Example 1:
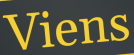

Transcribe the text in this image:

Viens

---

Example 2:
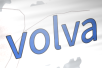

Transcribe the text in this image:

volva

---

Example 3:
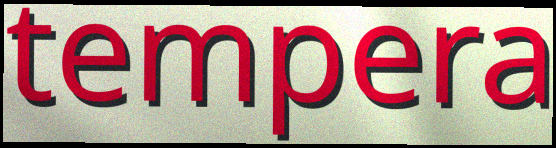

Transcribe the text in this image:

tempera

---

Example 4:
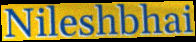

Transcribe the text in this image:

Nileshbhai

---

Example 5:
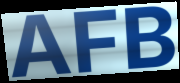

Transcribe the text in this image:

AFB